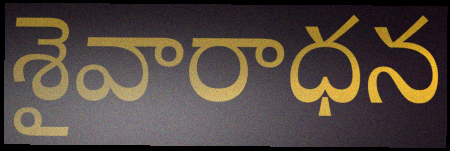
శైవారాధన